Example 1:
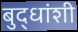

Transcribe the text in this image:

बुद्धांशी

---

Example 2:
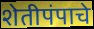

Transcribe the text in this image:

शेतीपंपाचे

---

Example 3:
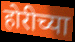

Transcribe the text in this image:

होरीच्या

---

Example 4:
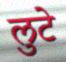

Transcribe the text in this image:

लुटे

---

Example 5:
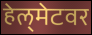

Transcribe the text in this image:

हेल्मेटवर